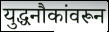
युद्धनौकांवरून